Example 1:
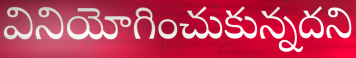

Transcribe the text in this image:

వినియోగించుకున్నదని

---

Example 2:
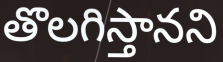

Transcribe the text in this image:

తొలగిస్తానని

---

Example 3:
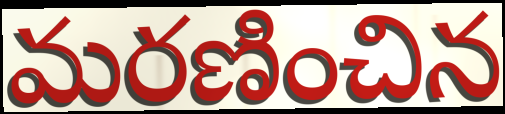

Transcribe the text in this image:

మరణించిన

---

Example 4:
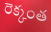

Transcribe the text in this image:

రెక్కంత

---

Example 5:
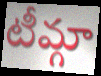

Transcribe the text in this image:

టీమ్గా